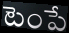
టెంపే